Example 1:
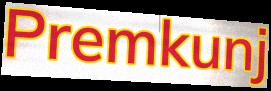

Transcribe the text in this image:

Premkunj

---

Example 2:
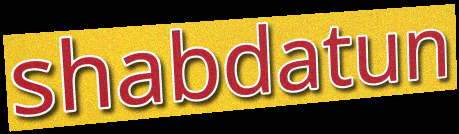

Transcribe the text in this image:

shabdatun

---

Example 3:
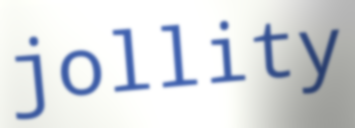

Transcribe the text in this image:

jollity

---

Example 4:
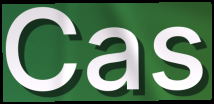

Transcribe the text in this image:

Cas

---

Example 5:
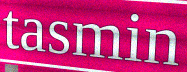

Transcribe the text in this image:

tasmin